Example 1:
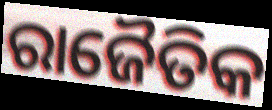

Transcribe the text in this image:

ରାଜୈତିକ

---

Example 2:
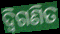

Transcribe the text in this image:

ଦ୍ୱିଗଣିତ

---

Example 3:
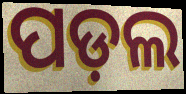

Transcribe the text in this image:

ପଡ଼ଲ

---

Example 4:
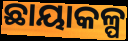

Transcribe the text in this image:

ଛାୟାକଳ୍ପ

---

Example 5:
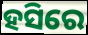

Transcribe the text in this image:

ହସିରେ